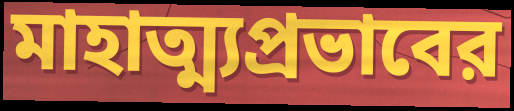
মাহাত্ম্যপ্রভাবের